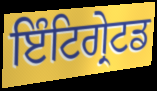
ਇੰਟਿਗ੍ਰੇਟਡ